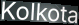
Kolkota